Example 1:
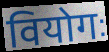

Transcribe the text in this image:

वियोगः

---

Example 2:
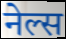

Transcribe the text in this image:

नेल्स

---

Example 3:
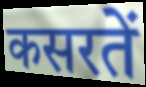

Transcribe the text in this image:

कसरतें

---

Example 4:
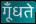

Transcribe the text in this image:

गूँधते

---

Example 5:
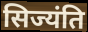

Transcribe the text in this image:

सिज्यंति